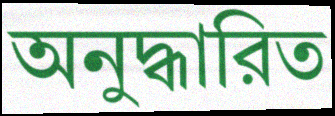
অনুদ্ধারিত